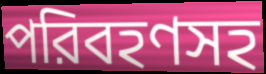
পরিবহণসহ